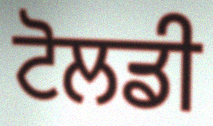
ਟੋਲਡੀ